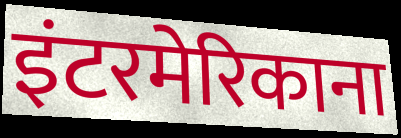
इंटरमेरिकाना